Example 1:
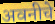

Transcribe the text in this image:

अवनीचे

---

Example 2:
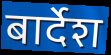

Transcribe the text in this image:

बार्देश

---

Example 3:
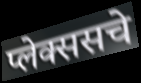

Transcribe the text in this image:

प्लेक्ससचे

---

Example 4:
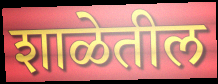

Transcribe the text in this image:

शाळेतील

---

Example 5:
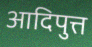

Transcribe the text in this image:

आदिपुत्त